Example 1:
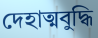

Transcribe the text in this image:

দেহাত্মবুদ্ধি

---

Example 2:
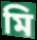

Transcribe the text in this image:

মি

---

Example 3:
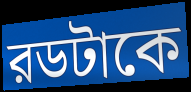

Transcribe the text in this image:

রডটাকে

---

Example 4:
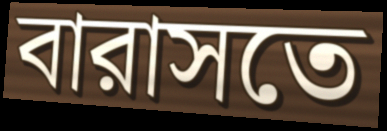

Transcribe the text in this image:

বারাসতে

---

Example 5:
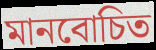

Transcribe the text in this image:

মানবোচিত